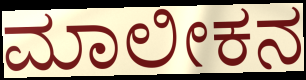
ಮಾಲೀಕನ